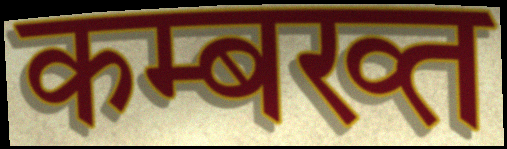
कम्बख्त